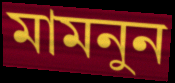
মামনুন